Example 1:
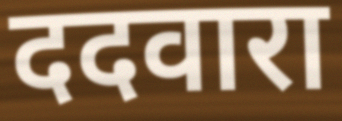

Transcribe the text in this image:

ददवारा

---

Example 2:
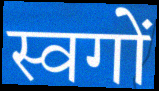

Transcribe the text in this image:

स्वगों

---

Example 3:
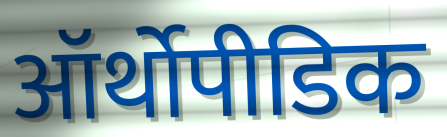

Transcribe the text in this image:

ऑर्थोपीडिक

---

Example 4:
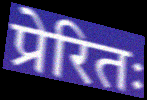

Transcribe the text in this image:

प्रेरितः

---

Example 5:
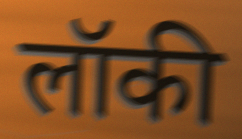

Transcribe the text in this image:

लॉकी